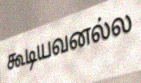
கூடியவனல்ல